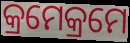
କ୍ରମେକ୍ରମେ